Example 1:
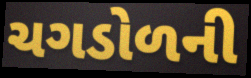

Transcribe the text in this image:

ચગડોળની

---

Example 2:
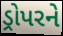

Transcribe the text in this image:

ડ્રોપરને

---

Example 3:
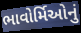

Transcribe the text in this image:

ભાવોર્મિઓનું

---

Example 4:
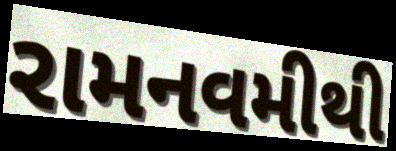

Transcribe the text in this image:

રામનવમીથી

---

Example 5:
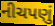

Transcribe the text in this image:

નીચપણું